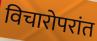
विचारोपरांत